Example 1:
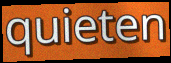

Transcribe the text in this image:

quieten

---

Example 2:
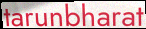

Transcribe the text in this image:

tarunbharat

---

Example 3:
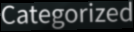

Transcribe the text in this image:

Categorized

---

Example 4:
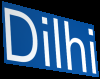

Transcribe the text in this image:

Dilhi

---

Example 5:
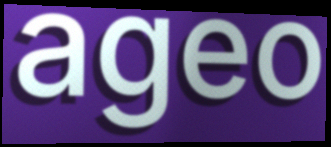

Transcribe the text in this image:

ageo